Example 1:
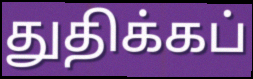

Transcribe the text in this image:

துதிக்கப்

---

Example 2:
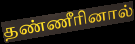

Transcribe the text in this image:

தண்ணீரினால்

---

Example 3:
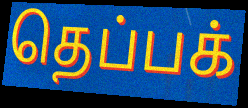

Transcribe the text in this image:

தெப்பக்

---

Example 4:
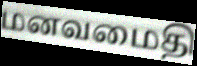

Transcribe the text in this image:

மனவமைதி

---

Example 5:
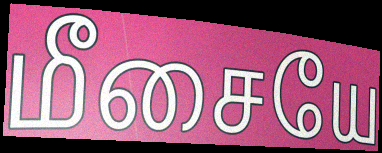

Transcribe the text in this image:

மீசையே